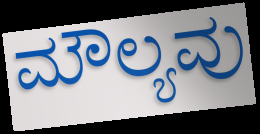
ಮೌಲ್ಯವು